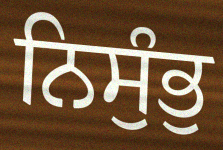
ਨਿਸੁੰਭੁ